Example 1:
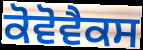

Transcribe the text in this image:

ਕੋਵੋਵੈਕਸ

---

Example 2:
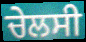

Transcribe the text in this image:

ਚੇਲਸੀ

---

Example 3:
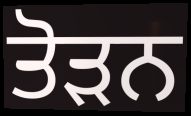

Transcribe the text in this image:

ਤੋੜਨ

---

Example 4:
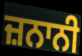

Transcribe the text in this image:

ਜ਼ਨਾਨੀ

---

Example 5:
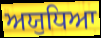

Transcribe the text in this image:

ਅਯੁਧਿਆ